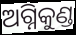
ଅଗ୍ନିକୁଣ୍ଡ